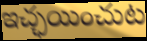
ఇచ్ఛయించుట